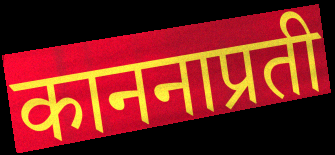
काननाप्रती